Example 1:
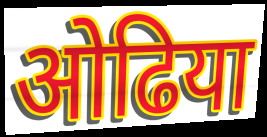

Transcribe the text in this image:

ओढिया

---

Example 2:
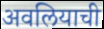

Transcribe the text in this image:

अवलियाची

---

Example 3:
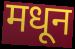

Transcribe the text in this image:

मधून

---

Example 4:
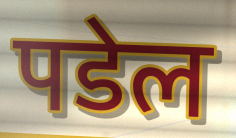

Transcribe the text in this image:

पडेल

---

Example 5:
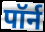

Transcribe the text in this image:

पॉर्न